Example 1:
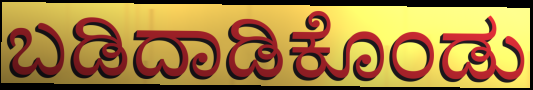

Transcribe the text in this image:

ಬಡಿದಾಡಿಕೊಂಡು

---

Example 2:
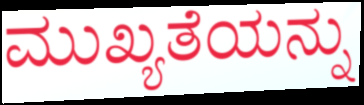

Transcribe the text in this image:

ಮುಖ್ಯತೆಯನ್ನು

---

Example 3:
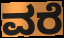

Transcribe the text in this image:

ವರೆ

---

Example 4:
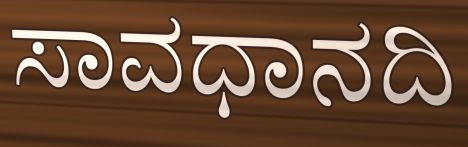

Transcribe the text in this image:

ಸಾವಧಾನದಿ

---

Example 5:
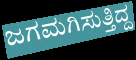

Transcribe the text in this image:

ಜಗಮಗಿಸುತ್ತಿದ್ದ